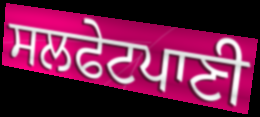
ਸਲਫੇਟਪਾਣੀ